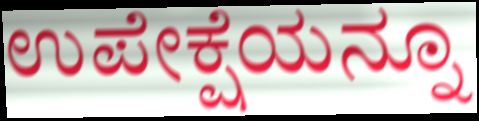
ಉಪೇಕ್ಷೆಯನ್ನೂ